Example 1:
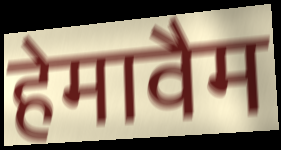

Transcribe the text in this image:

हेमावैम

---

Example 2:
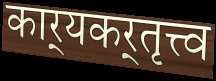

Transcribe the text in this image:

कार्यकर्तृत्त्व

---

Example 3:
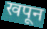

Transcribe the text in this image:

खपून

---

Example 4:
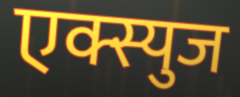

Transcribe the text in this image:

एक्स्युज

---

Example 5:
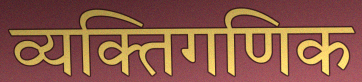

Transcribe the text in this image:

व्यक्तिगणिक